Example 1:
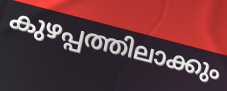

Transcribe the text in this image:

കുഴപ്പത്തിലാക്കും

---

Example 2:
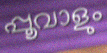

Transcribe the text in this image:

പ്പൂവാളും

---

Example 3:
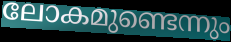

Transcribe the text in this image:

ലോകമുണ്ടെന്നും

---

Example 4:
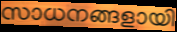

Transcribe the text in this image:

സാധനങ്ങളായി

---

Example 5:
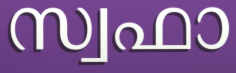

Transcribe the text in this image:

സ്വഫാ